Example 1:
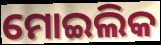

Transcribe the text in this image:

ମୋଇଲିକ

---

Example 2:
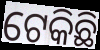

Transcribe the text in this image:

ଟେକିଛି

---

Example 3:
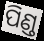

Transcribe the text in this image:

ପିଣ୍ଡ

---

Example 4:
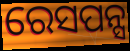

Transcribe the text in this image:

ରେସପନ୍ସ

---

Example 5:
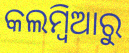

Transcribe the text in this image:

କଲମ୍ବିଆରୁ